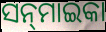
ସନ୍‌ମାଇକା